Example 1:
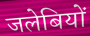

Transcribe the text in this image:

जलेबियों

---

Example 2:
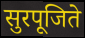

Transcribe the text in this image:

सुरपूजिते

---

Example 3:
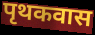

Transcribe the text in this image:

पृथकवास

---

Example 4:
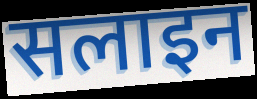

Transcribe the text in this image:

सलाइन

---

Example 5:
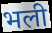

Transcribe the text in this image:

भली